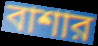
বাশার